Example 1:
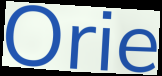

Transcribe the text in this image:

Orie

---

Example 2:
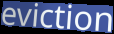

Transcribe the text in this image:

eviction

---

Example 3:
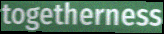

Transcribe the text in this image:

togetherness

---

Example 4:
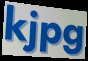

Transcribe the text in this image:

kjpg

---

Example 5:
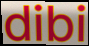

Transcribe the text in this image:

dibi